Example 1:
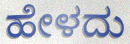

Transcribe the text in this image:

ಹೇಳದು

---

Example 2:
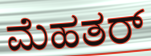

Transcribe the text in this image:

ಮೆಹತರ್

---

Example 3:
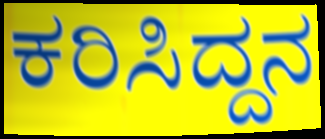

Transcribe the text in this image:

ಕರಿಸಿದ್ದನ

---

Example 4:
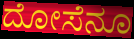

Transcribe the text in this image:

ದೋಸೆನೂ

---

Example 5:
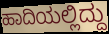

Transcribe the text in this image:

ಹಾದಿಯಲ್ಲಿದ್ದು